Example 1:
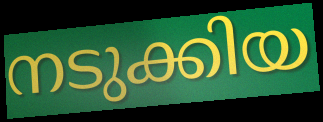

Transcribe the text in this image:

നടുക്കിയ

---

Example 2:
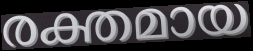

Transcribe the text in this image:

രക്തമായ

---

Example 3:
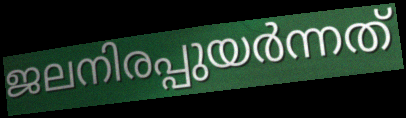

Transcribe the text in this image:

ജലനിരപ്പുയർന്നത്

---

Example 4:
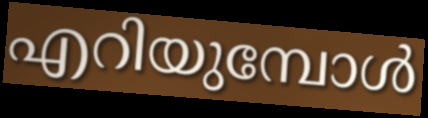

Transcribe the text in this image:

എറിയുമ്പോൾ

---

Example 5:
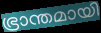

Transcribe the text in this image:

ഭ്രാന്തമായി